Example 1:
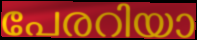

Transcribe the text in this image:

പേരറിയാ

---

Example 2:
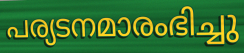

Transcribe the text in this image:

പര്യടനമാരംഭിച്ചു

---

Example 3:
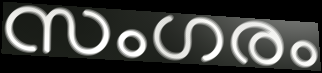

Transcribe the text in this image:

സംഗരം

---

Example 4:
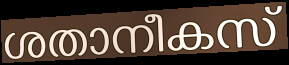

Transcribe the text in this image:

ശതാനീകസ്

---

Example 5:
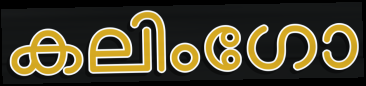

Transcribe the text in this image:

കലിംഗോ